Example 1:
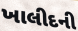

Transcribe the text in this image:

ખાલીદની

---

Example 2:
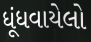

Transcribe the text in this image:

ધૂંધવાયેલો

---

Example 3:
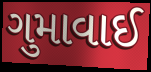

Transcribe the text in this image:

ગુમાવાઈ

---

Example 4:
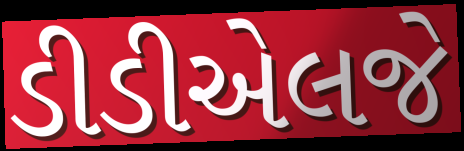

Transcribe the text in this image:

ડીડીએલજે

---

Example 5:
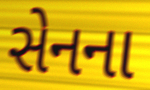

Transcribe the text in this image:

સેનના